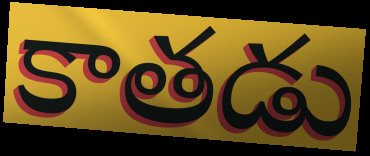
కాతడు